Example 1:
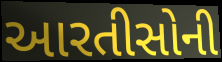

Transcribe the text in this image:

આરતીસોની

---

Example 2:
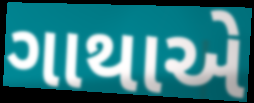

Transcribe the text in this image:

ગાથાએ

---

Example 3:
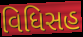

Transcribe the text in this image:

વિધિસહ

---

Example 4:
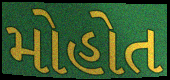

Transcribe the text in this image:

મોહોત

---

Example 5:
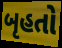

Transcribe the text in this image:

બૃહતો